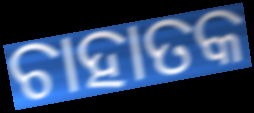
ଚାହାତକ